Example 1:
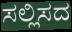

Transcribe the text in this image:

ಸಲ್ಲಿಸದ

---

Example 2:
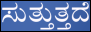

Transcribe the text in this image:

ಸುತ್ತುತ್ತದೆ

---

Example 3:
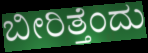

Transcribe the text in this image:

ಬೀರಿತ್ತೆಂದು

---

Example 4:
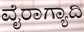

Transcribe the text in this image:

ವೈರಾಗ್ಯಾದಿ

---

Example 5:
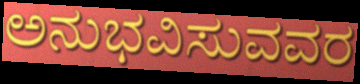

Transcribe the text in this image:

ಅನುಭವಿಸುವವರ